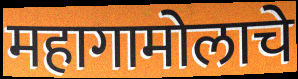
महागामोलाचे